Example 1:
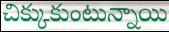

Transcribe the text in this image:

చిక్కుకుంటున్నాయి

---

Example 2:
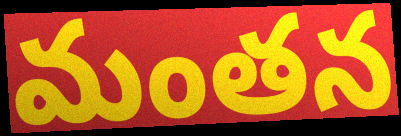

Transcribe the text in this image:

మంతన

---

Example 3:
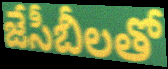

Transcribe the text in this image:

జేసీబీలతో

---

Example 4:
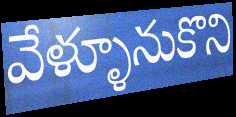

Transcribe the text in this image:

వేళ్ళూనుకొని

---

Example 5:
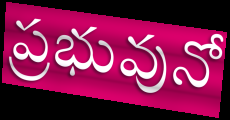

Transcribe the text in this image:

ప్రభువునో